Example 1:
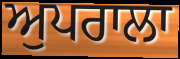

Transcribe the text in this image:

ਅੁਪਰਾਲਾ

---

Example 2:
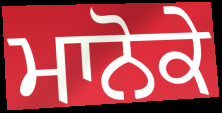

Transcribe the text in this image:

ਮਾਨੋਕੇ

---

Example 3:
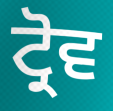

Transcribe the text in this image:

ਟ੍ਰੋਵ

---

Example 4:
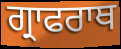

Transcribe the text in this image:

ਗ੍ਰਾਫਰਾਥ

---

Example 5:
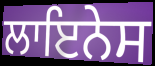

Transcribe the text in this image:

ਲਾਇਨੇਸ